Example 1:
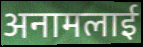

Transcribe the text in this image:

अनामलाई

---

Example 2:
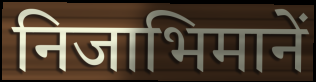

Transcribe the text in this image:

निजाभिमानें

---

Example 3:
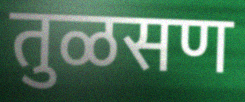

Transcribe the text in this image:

तुळसण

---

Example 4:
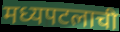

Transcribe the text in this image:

मध्यपटलाची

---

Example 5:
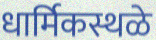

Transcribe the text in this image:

धार्मिकस्थळे